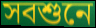
সবশুনে